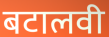
बटालवी